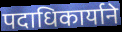
पदाधिकार्याने